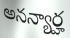
అనన్యార్హ